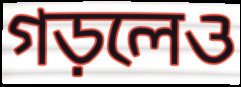
গড়লেও